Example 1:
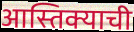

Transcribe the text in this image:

आस्तिक्याची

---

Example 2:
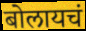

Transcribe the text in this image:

बोलायचं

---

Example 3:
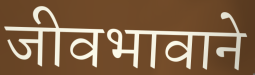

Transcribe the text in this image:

जीवभावाने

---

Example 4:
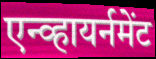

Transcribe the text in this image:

एन्व्हायर्नमेंट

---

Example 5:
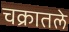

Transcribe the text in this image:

चक्रातले